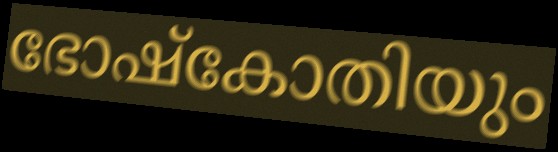
ഭോഷ്കോതിയും